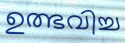
ഉത്ഭവിച്ച